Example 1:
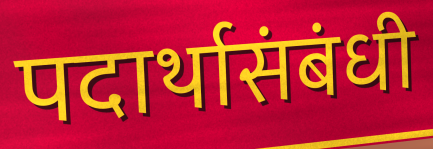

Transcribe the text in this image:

पदार्थासंबंधी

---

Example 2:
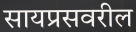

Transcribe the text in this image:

सायप्रसवरील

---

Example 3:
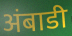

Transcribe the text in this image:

अंबाडी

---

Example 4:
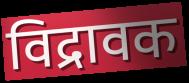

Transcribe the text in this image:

विद्रावक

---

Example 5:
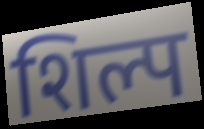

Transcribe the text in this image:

शिल्प